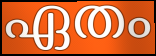
ഏതം